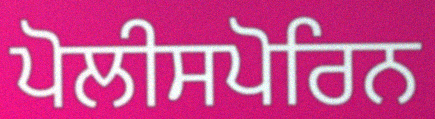
ਪੋਲੀਸਪੋਰਿਨ